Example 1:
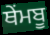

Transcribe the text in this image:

ਥੇਂਮਬੂ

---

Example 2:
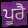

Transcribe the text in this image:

ਪੂਰੈ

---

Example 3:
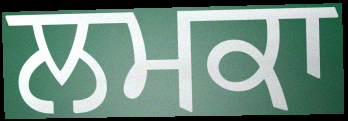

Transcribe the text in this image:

ਲਮਕਾ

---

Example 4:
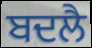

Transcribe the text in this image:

ਬਦਲੈ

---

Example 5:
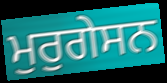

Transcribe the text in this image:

ਮੁਰੁਗੇਸਨ